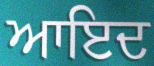
ਆਇਦ